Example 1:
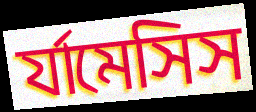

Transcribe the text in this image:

র্যামেসিস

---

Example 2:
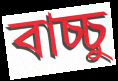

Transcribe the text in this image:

বাচ্চু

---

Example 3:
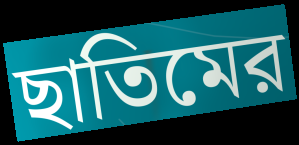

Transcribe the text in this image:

ছাতিমের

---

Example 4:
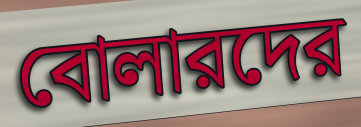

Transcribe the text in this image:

বোলারদের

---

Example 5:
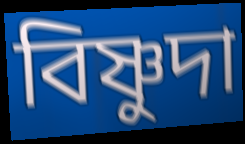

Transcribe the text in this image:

বিষ্ণুদা